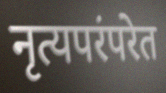
नृत्यपरंपरेत